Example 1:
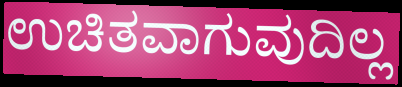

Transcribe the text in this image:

ಉಚಿತವಾಗುವುದಿಲ್ಲ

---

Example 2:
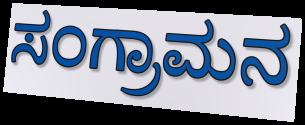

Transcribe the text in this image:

ಸಂಗ್ರಾಮನ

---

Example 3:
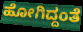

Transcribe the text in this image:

ಹೋಗಿದ್ದಂತೆ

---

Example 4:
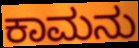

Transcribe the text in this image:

ಕಾಮನು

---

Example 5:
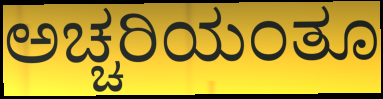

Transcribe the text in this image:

ಅಚ್ಚರಿಯಂತೂ